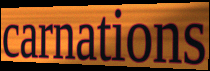
carnations